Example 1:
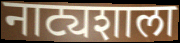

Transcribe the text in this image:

नाट्यशाला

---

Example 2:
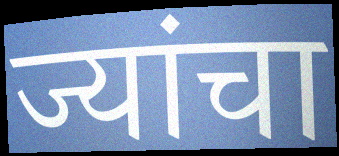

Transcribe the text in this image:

ज्यांचा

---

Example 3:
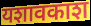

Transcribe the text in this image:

यशावकाश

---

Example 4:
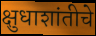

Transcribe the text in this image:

क्षुधाशांतीचे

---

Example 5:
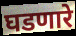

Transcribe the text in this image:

घडणारे